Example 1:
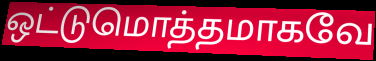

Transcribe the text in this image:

ஒட்டுமொத்தமாகவே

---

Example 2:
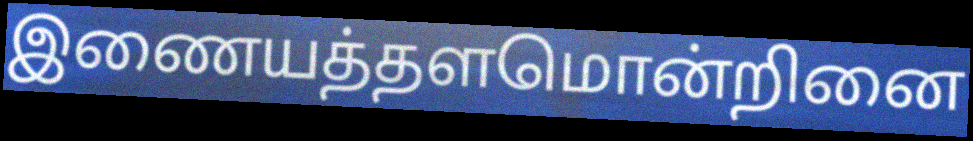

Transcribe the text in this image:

இணையத்தளமொன்றினை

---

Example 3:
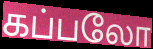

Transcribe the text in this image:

கப்பலோ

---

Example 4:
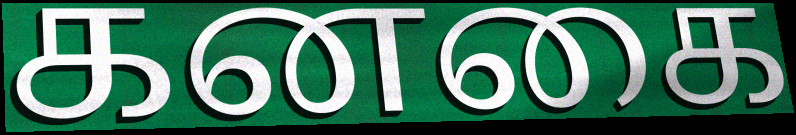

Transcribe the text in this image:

கனகை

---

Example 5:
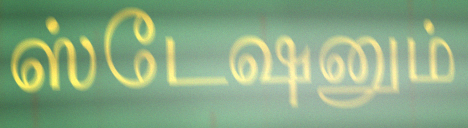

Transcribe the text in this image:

ஸ்டேஷனும்